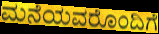
ಮನೆಯವರೊಂದಿಗೆ